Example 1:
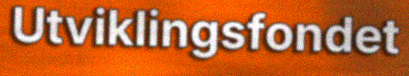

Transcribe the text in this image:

Utviklingsfondet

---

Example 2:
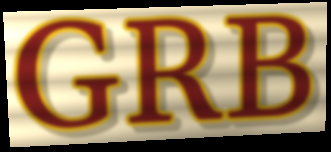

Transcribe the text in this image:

GRB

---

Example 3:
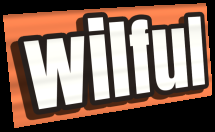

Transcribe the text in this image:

wilful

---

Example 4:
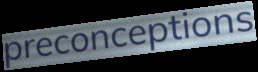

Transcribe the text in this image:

preconceptions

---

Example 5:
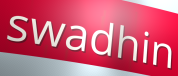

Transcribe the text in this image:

swadhin